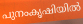
പുനംകൃഷിയിൽ